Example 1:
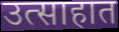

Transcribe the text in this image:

उत्साहात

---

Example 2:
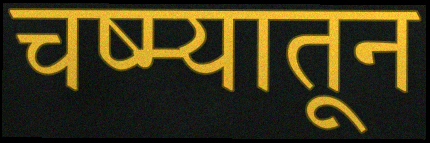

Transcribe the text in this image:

चष्म्यातून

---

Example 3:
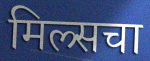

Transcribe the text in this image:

मिल्सचा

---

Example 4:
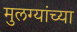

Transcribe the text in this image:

मुलग्यांच्या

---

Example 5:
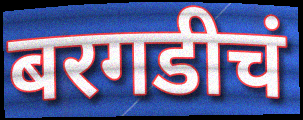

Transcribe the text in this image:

बरगडीचं